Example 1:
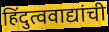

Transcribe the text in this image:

हिंदुत्ववाद्यांची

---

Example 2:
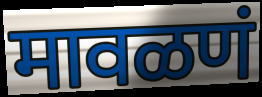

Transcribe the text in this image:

मावळणं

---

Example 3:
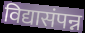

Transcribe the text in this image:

विद्यासंपन्न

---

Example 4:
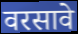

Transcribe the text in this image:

वरसावे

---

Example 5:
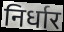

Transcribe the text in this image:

निर्धार